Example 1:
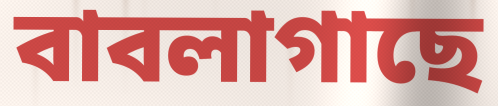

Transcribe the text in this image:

বাবলাগাছে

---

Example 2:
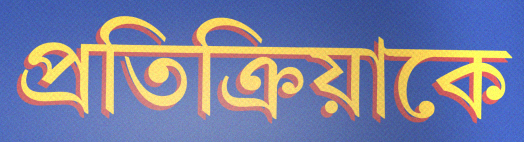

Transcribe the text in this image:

প্রতিক্রিয়াকে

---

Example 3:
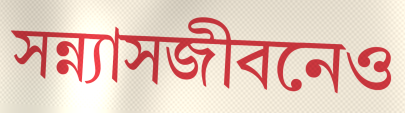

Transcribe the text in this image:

সন্ন্যাসজীবনেও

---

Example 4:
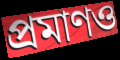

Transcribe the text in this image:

প্রমাণও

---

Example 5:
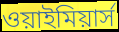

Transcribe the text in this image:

ওয়াইমিয়ার্স